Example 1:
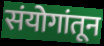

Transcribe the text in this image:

संयोगांतून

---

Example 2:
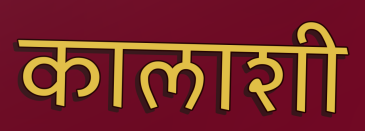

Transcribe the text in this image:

कालाशी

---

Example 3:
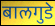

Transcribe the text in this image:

बालगुडे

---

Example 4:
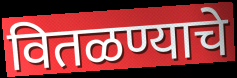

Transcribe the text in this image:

वितळण्याचे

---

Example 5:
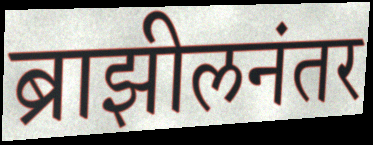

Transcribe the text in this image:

ब्राझीलनंतर